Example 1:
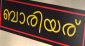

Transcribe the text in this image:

ബാരിയര്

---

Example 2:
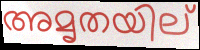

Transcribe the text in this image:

അമൃതയില്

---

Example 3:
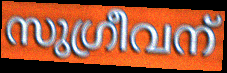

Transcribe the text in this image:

സുഗ്രീവന്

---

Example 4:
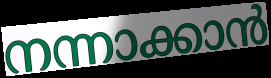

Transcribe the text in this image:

നന്നാക്കാൻ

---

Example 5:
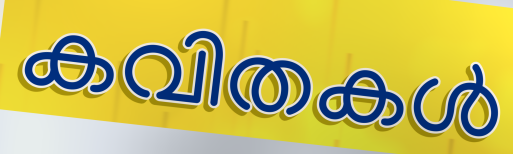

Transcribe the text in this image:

കവിതകൾ